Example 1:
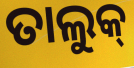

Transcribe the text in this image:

ତାଲୁକ୍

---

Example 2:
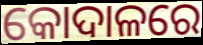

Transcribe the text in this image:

କୋଦାଳରେ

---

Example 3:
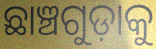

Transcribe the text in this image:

ଛାଞ୍ଚଗୁଡ଼ାକୁ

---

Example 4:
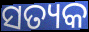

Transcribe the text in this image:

ସତ୍ୟକ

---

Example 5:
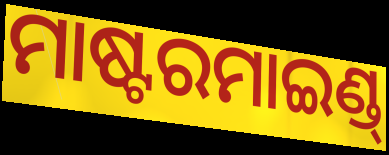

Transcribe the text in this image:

ମାଷ୍ଟରମାଇଣ୍ଡ୍